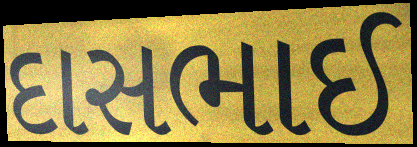
દાસભાઈ